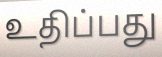
உதிப்பது